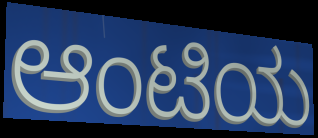
ಆಂಟಿಯ